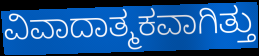
ವಿವಾದಾತ್ಮಕವಾಗಿತ್ತು